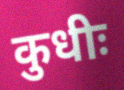
कुधीः